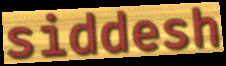
siddesh